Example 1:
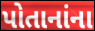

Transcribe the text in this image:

પોતાનાંના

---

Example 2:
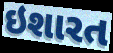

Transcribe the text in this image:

ઇશારત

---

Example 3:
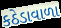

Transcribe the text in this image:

કઠેડાવાળા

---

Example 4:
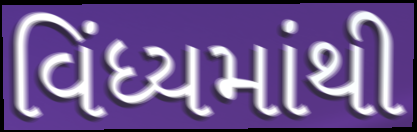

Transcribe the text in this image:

વિંધ્યમાંથી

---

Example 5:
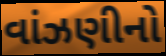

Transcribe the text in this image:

વાંઝણીનો